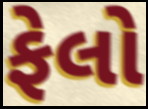
ફેલો